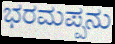
ಭರಮಪ್ಪನು